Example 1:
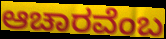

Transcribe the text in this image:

ಆಚಾರವೆಂಬ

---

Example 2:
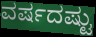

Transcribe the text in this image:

ವರ್ಷದಷ್ಟು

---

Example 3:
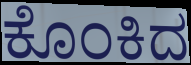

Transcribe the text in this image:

ಕೊಂಕಿದ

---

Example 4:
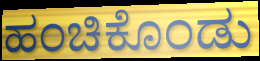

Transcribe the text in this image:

ಹಂಚಿಕೊಂಡು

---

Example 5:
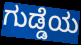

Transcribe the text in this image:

ಗುಡ್ಡೆಯ